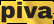
piva